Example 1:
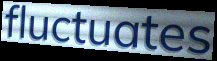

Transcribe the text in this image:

fluctuates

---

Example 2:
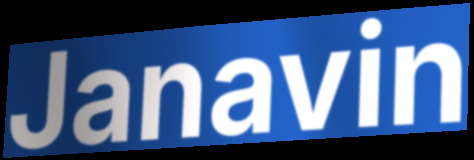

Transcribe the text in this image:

Janavin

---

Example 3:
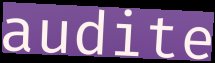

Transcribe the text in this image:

audite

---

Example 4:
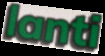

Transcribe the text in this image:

lanti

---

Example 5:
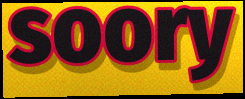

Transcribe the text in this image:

soory